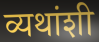
व्यथांशी